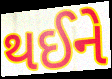
થઈને